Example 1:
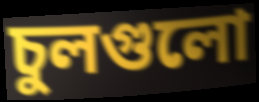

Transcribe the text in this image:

চুলগুলো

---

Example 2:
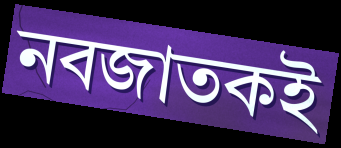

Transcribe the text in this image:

নবজাতকই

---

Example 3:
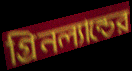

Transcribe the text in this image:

গ্রিনল্যান্ডের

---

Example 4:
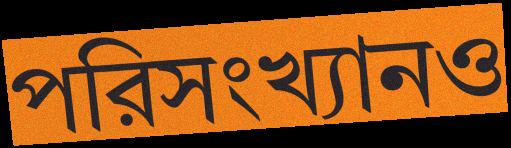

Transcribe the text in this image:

পরিসংখ্যানও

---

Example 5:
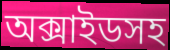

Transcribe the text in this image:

অক্সাইডসহ